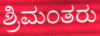
ಶ್ರಿಮಂತರು